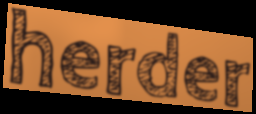
herder